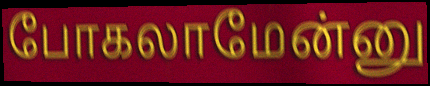
போகலாமேன்னு